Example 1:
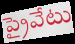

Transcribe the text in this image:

ప్రైవేటు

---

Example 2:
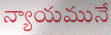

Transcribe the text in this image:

న్యాయమునే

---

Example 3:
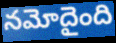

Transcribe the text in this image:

నమోదైంది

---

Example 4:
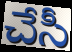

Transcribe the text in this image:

చేసీ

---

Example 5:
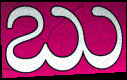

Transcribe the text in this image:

బు